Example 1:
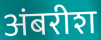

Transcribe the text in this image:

अंबरीश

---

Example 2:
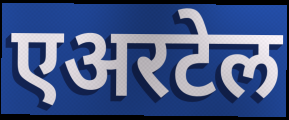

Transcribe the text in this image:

एअरटेल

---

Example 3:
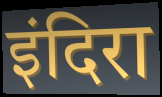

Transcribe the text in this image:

इंदिरा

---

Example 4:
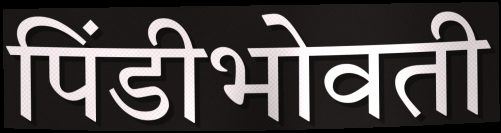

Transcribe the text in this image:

पिंडीभोवती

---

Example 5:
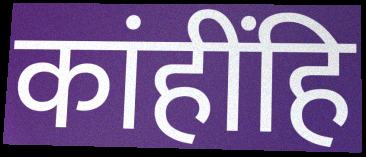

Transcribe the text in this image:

कांहींहि